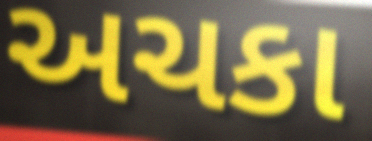
અચકા